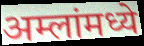
अम्लांमध्ये